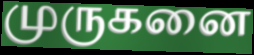
முருகனை